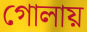
গোলায়